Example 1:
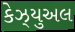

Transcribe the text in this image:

કેઝ્યુઅલ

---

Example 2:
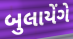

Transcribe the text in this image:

બુલાયેંગે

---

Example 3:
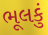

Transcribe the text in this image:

ભૂલકું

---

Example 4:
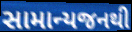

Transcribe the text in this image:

સામાન્યજનથી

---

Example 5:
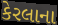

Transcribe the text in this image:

કેરલાના